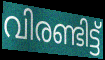
വിരണ്ടിട്ട്